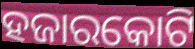
ହଜାରକୋଟି